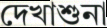
দেখাশুনা